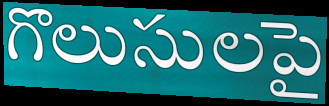
గొలుసులపై